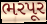
ભરપૂર